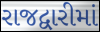
રાજદ્વારીમાં